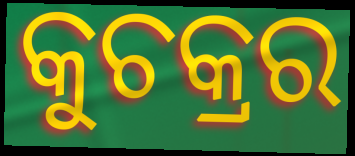
କୁଚକ୍ରର